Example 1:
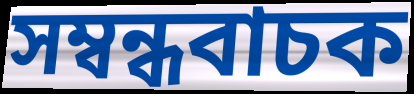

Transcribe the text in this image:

সম্বন্ধবাচক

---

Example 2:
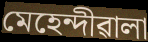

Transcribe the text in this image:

মেহেন্দীৱালা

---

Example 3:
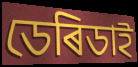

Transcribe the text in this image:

ডেৰিডাই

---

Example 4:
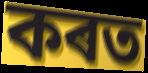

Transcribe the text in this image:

কৰত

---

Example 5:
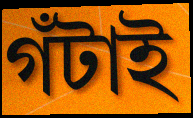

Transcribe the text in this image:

গঁটাই